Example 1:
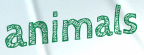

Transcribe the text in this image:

animals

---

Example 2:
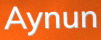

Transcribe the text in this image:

Aynun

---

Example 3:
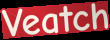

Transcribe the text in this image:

Veatch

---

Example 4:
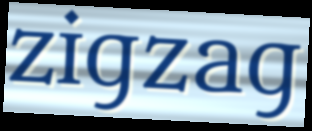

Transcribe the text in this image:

zigzag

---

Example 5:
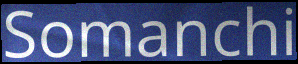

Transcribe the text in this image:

Somanchi